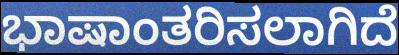
ಭಾಷಾಂತರಿಸಲಾಗಿದೆ